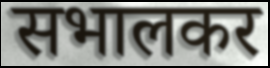
सभालकर